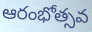
ఆరంభోత్సవ